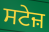
ਸਟੇਜ਼